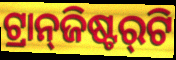
ଟ୍ରାନ୍‌ଜିଷ୍ଟର୍‌ଟି